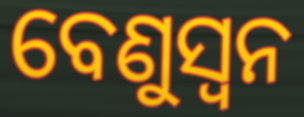
ବେଣୁସ୍ଵନ